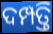
ଦମ୍ପତ୍ତି